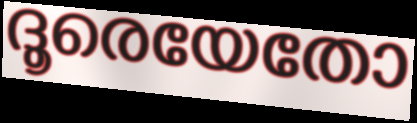
ദൂരെയേതോ